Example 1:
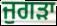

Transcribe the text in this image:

ਜੁਗੜਾ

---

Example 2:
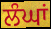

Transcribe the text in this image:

ਲੰਘਾਂ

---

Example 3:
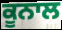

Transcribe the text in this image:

ਕੂਨਾਲ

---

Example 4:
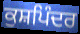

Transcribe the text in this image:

ਕੁਸ਼ਪਿੰਦਰ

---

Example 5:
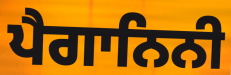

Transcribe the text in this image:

ਪੈਗਾਨਿਨੀ